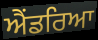
ਐਂਡਰਿਆ